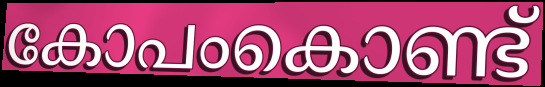
കോപംകൊണ്ട്